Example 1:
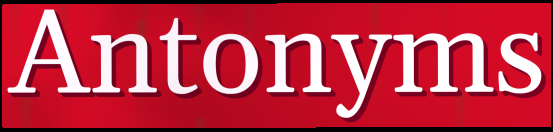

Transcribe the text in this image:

Antonyms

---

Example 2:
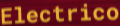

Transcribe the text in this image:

Electrico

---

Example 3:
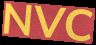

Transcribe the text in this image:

NVC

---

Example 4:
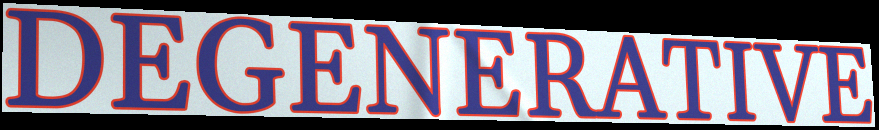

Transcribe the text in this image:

DEGENERATIVE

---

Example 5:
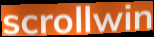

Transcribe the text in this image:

scrollwin